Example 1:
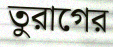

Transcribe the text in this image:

তুরাগের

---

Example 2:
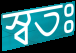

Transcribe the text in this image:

স্বতঃ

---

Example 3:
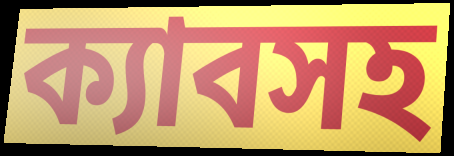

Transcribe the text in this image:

ক্যাবসহ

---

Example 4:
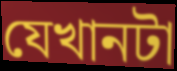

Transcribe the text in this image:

যেখানটা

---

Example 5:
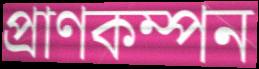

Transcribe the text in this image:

প্রাণকম্পন